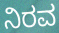
ನಿರವ